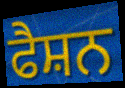
ਫੈਸ਼ਨ